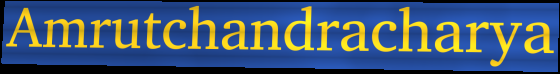
Amrutchandracharya